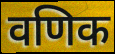
वणिक